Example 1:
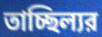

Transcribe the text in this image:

তাচ্ছিল্যর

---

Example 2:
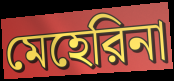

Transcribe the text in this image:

মেহেরিনা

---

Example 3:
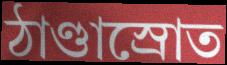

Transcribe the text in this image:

ঠাণ্ডাস্রোত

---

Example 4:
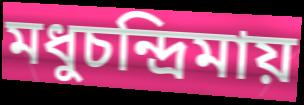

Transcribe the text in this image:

মধুচন্দ্রিমায়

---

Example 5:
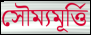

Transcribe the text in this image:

সৌম্যমূর্ত্তি